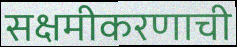
सक्षमीकरणाची